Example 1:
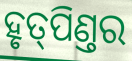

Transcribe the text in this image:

ହୃତ୍‌ପିଣ୍ତର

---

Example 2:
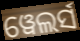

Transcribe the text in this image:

ୱେଲର୍ସ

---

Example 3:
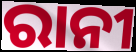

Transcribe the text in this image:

ରାନୀ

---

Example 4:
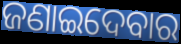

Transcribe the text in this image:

ଜଣାଇଦେବାର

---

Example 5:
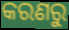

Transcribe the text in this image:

କରଣରୁ